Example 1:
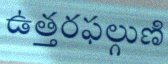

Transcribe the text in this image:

ఉత్తరఫల్గుణి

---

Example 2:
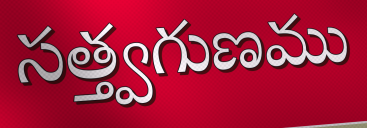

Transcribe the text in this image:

సత్త్వగుణము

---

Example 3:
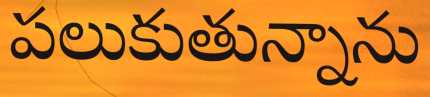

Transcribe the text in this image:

పలుకుతున్నాను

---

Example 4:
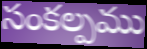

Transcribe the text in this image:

సంకల్పము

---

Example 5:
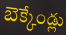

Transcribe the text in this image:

బెక్కేండ్లు